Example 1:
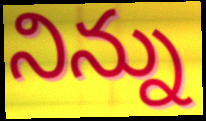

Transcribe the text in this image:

నిన్ను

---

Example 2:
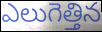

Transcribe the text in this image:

ఎలుగెత్తిన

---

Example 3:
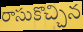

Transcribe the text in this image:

రాసుకొచ్చిన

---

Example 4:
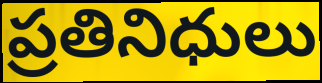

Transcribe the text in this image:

ప్రతినిధులు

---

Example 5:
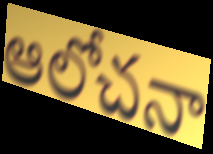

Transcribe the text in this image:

ఆలోచనా